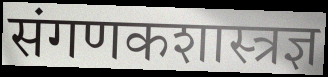
संगणकशास्त्रज्ञ